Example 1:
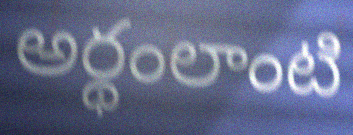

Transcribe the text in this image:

అర్థంలాంటి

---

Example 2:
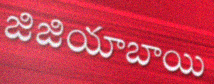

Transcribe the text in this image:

జిజియాబాయి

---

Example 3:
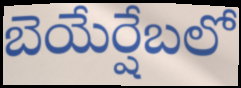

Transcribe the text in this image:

బెయేర్షేబలో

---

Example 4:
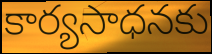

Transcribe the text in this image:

కార్యసాధనకు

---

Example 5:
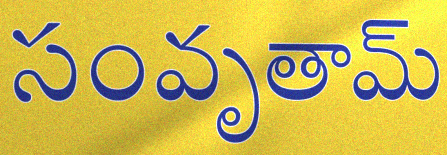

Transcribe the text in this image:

సంవృతామ్